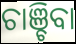
ଚାଞ୍ଚିବା